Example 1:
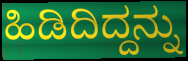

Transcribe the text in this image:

ಹಿಡಿದಿದ್ದನ್ನು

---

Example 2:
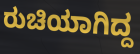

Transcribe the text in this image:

ರುಚಿಯಾಗಿದ್ದ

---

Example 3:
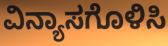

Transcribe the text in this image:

ವಿನ್ಯಾಸಗೊಳಿಸಿ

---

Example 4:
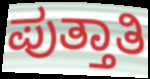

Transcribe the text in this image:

ಪುತ್ತಾತಿ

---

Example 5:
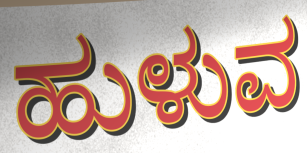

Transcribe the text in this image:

ಹುಳುವ